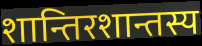
शान्तिरशान्तस्य